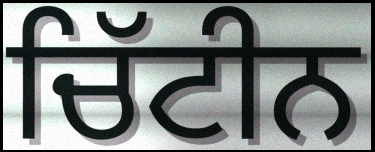
ਚਿੱਟੀਨ